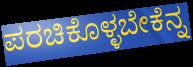
ಪರಚಿಕೊಳ್ಳಬೇಕೆನ್ನ